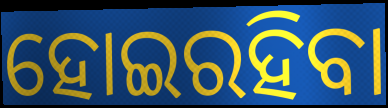
ହୋଇରହିବା